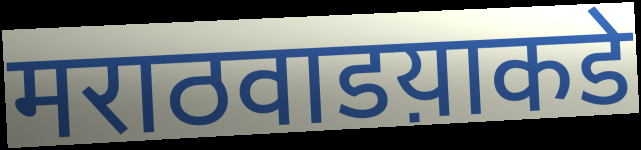
मराठवाडय़ाकडे